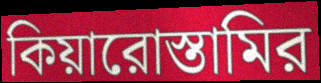
কিয়ারোস্তামির